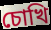
চোখি